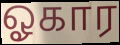
ஓகார